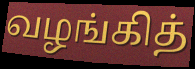
வழங்கித்